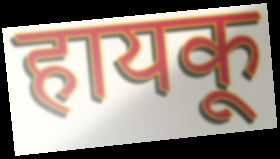
हायकू